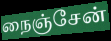
நைஞ்சேன்